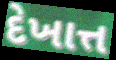
દેખાત્ત